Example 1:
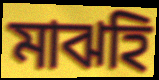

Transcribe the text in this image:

মাঝহি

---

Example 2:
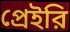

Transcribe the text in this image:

প্রেইরি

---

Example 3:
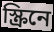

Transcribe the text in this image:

স্ক্রিনে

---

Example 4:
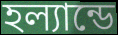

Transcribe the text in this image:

হল্যান্ডে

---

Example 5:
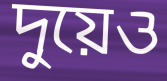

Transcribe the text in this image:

দুয়েও